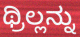
ಥ್ರಿಲ್ಲನ್ನು